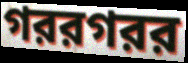
গররগরর